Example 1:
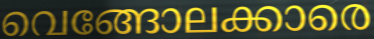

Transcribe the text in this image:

വെങ്ങോലക്കാരെ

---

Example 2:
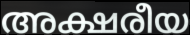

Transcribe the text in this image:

അക്ഷരീയ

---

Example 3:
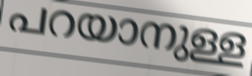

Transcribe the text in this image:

പറയാനുള്ള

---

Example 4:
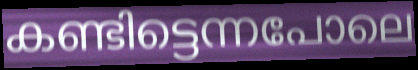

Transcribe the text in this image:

കണ്ടിട്ടെന്നപോലെ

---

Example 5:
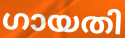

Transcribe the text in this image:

ഗായതി